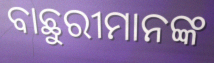
ବାଛୁରୀମାନଙ୍କ